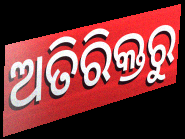
ଅତିରିକ୍ତରୁ